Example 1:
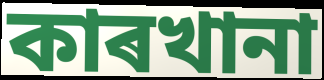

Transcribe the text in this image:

কাৰখানা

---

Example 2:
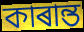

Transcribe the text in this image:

কাৰান্ত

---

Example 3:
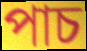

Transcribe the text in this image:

পাচ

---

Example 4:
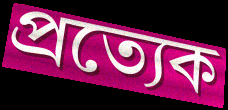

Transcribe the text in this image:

প্ৰত্যেক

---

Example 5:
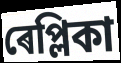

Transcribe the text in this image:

ৰেপ্লিকা